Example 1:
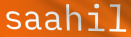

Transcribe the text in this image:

saahil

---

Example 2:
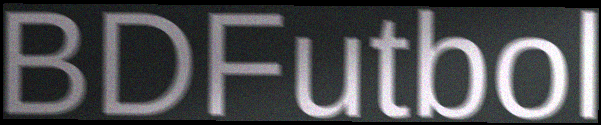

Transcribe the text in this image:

BDFutbol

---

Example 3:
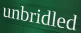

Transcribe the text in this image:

unbridled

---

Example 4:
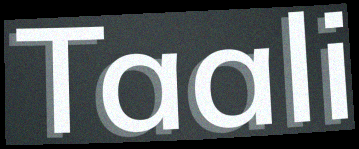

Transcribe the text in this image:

Taali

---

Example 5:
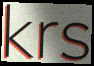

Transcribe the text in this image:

krs